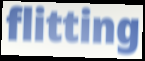
flitting